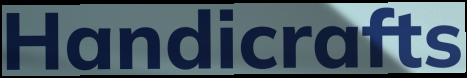
Handicrafts